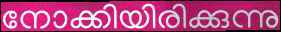
നോക്കിയിരിക്കുന്നു